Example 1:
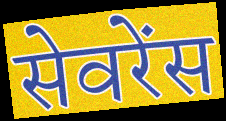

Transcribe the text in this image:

सेवरेंस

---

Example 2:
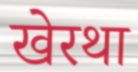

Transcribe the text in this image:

खेरथा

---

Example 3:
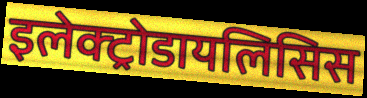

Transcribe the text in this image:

इलेक्ट्रोडायलिसिस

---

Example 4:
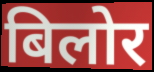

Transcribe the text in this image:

बिलोर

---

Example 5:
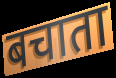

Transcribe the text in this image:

बचाता